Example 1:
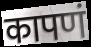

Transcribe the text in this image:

कापणं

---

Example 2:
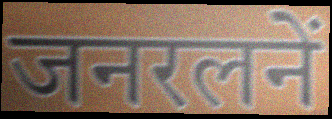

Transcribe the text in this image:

जनरलनें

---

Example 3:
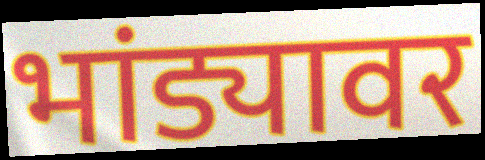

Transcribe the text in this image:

भांड्यावर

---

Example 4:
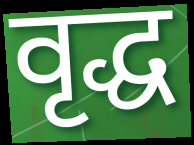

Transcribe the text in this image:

वृद्ध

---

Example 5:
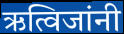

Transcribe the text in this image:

ऋत्विजांनी